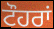
ਟੌਹਰਾਂ